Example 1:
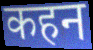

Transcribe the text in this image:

कहन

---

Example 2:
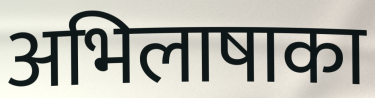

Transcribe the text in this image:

अभिलाषाका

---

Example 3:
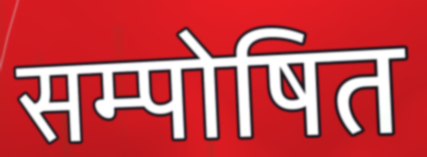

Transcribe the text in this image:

सम्पोषित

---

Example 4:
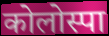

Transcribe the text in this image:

कोलोस्पा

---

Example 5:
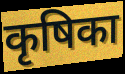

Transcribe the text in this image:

कृषिका